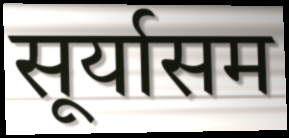
सूर्यासम